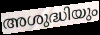
അശുദ്ധിയും